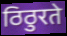
ठिठुरते